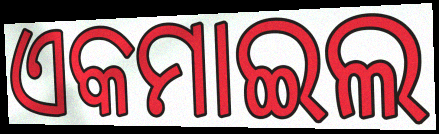
ଏକମାଇଲ